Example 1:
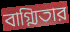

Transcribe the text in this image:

বাগ্মিতার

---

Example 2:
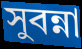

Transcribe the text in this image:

সুবন্না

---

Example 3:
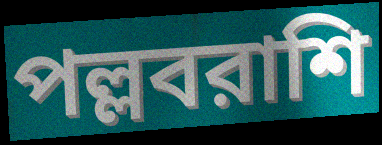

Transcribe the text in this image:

পল্লবরাশি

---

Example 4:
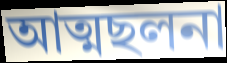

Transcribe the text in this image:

আত্মছলনা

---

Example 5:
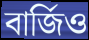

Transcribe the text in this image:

বার্জিও